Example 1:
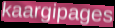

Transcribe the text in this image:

kaargipages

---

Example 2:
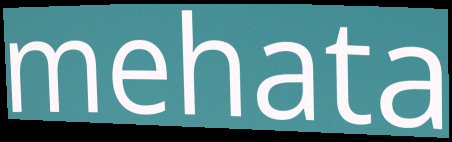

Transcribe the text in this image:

mehata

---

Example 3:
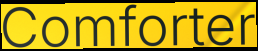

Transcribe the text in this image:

Comforter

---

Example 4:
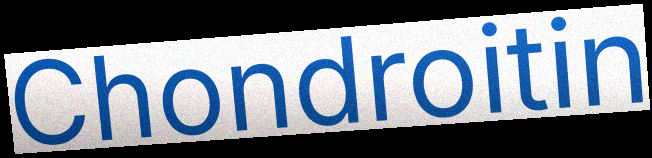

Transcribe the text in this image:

Chondroitin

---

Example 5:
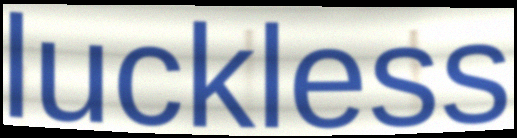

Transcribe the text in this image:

luckless